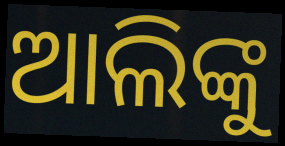
ଆଲିଙ୍କୁ